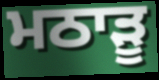
ਮਠਾੜੂ